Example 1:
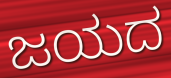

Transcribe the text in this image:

ಜಯದ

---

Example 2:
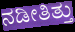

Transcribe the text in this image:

ನಡೀತಿತ್ತು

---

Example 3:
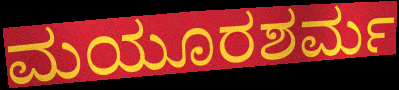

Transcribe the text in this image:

ಮಯೂರಶರ್ಮ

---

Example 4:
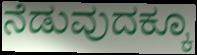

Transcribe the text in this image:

ನೆಡುವುದಕ್ಕೂ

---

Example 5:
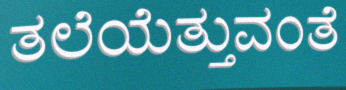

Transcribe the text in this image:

ತಲೆಯೆತ್ತುವಂತೆ